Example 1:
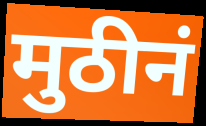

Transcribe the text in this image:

मुठीनं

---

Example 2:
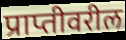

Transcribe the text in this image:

प्राप्तीवरील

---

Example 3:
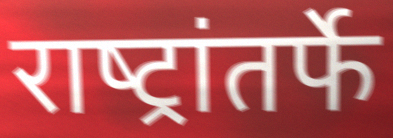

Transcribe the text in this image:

राष्ट्रांतर्फे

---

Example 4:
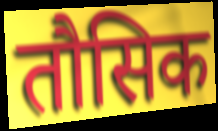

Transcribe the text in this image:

तौसिक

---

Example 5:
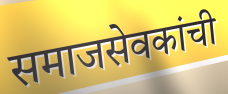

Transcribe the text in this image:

समाजसेवकांची